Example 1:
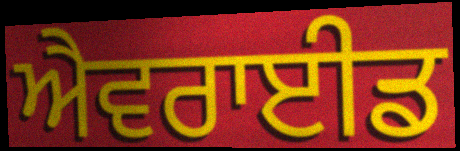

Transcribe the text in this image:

ਐਵਰਾਈਡ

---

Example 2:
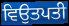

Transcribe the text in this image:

ਵਿਉਤਪਤੀ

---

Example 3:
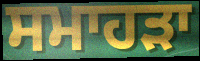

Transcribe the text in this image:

ਸਮਾਹੜਾ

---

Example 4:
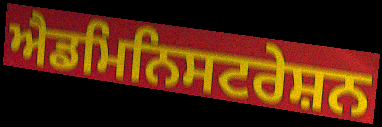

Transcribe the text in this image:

ਐਡਮਿਨਿਸਟਰੇਸ਼ਨ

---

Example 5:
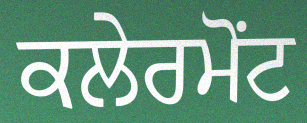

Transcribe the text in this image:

ਕਲੇਰਮੋਂਟ